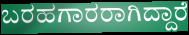
ಬರಹಗಾರರಾಗಿದ್ದಾರೆ